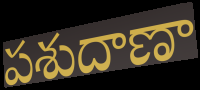
పశుదాణా